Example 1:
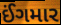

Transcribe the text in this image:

ઈંગમાર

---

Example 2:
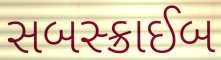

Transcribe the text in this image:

સબસ્ક્રાઈબ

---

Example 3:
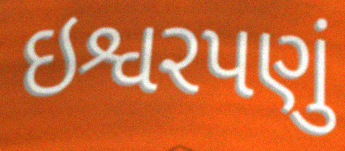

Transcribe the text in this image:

ઇશ્વરપણું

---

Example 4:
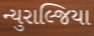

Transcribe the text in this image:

ન્યુરાલ્જિયા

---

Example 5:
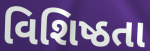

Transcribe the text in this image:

વિશિષ્ઠતા